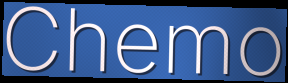
Chemo